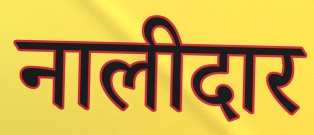
नालीदार